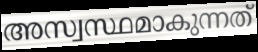
അസ്വസ്ഥമാകുന്നത്